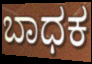
ಬಾಧಕ